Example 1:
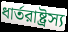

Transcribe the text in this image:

ধার্তরাষ্ট্রস্য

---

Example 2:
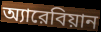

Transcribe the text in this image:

অ্যারেবিয়ান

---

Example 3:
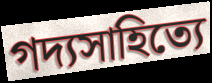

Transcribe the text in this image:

গদ্যসাহিত্যে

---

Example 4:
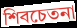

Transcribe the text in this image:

শিবচেতনা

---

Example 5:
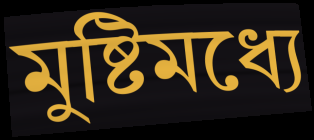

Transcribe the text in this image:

মুষ্টিমধ্যে